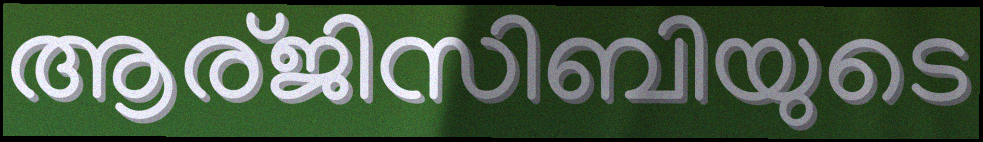
ആര്ജിസിബിയുടെ